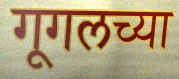
गूगलच्या